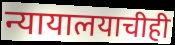
न्यायालयाचीही